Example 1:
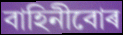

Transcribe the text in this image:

বাহিনীবোৰ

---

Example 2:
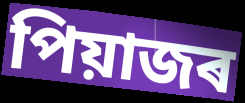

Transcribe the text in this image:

পিয়াজৰ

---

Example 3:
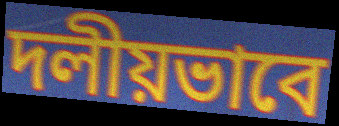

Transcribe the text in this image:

দলীয়ভাবে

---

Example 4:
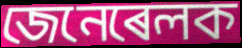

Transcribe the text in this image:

জেনেৰেলক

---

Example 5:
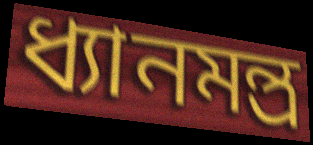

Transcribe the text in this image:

ধ্যানমন্ত্ৰ